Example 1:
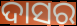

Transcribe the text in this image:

ଦାସର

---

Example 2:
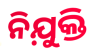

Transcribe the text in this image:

ନିଯ଼ୁକ୍ତି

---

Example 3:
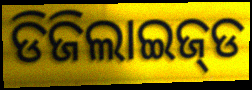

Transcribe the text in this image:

ଡିଜିଲାଇଜ୍‌ଡ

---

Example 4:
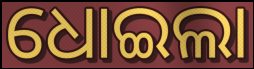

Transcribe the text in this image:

ଧୋଇଲା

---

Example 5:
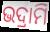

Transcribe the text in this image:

ଭଦ୍ରାମି